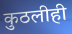
कुठलीही